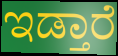
ಇಡ್ತಾರೆ